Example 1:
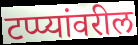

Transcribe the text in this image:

टप्प्यांवरील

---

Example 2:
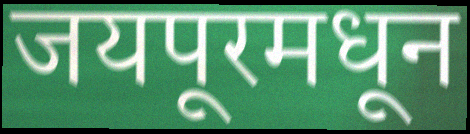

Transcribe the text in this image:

जयपूरमधून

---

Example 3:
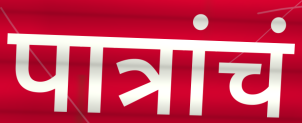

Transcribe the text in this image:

पात्रांचं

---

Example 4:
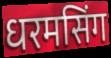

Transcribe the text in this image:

धरमसिंग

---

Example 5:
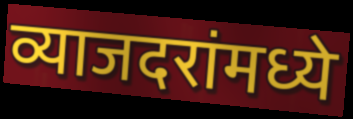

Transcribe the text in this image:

व्याजदरांमध्ये